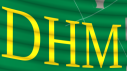
DHM